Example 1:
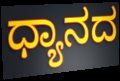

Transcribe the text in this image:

ಧ್ಯಾನದ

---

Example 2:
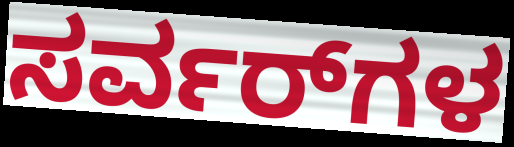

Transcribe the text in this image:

ಸರ್ವರ್‌ಗಳ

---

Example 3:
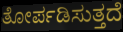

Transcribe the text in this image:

ತೋರ್ಪಡಿಸುತ್ತದೆ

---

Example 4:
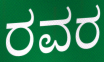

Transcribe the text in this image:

ರವರ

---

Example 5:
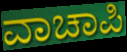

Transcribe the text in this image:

ವಾಚಾಪಿ